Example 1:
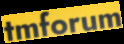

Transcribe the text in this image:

tmforum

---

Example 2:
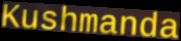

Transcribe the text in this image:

Kushmanda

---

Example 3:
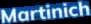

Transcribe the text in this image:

Martinich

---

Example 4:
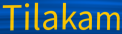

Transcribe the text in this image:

Tilakam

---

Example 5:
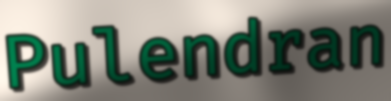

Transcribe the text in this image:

Pulendran